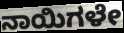
ನಾಯಿಗಳೇ